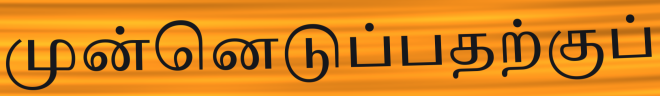
முன்னெடுப்பதற்குப்